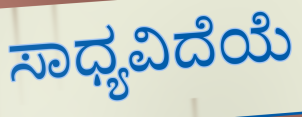
ಸಾಧ್ಯವಿದೆಯೆ